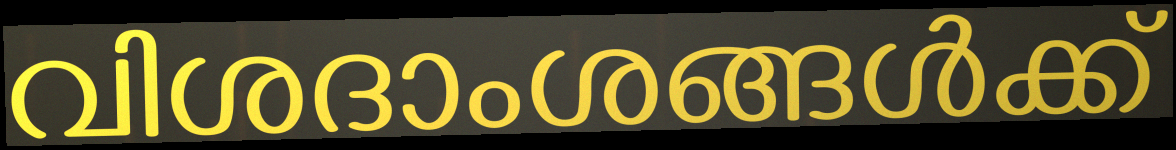
വിശദാംശങ്ങൾക്ക്